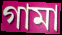
গামা